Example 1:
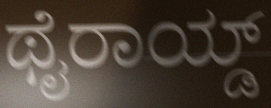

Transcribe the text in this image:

ಥೈರಾಯ್ಡ್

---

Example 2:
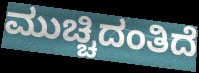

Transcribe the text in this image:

ಮುಚ್ಚಿದಂತಿದೆ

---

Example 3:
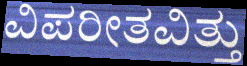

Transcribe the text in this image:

ವಿಪರೀತವಿತ್ತು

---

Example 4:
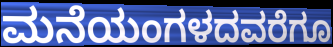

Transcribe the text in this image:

ಮನೆಯಂಗಳದವರೆಗೂ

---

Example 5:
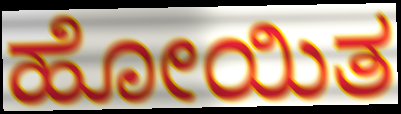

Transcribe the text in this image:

ಹೋಯಿತ